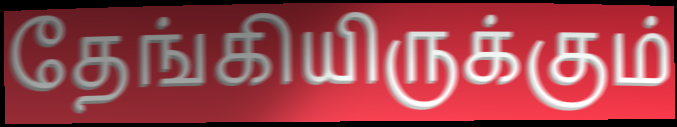
தேங்கியிருக்கும்